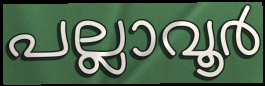
പല്ലാവൂർ